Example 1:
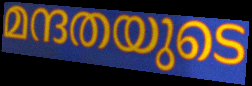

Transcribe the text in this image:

മന്ദതയുടെ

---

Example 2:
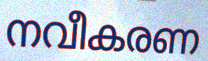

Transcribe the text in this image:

നവീകരണ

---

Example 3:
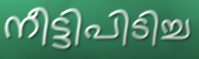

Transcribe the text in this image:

നീട്ടിപിടിച്ച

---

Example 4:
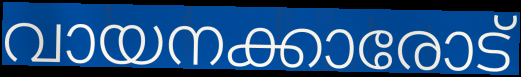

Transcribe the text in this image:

വായനക്കാരോട്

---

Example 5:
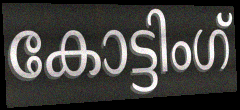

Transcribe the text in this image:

കോട്ടിംഗ്